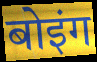
बोइंग